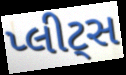
પ્લીટ્સ